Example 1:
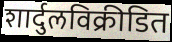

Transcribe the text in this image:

शार्दुलविक्रीडित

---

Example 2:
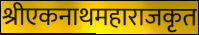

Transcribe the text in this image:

श्रीएकनाथमहाराजकृत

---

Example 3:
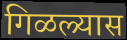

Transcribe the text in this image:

गिळल्यास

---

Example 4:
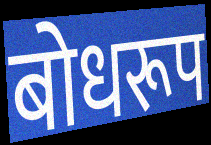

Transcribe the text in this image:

बोधरूप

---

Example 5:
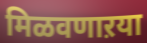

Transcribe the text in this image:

मिळवणाऱया